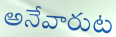
అనేవారుట